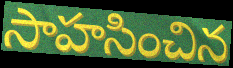
సాహసించిన